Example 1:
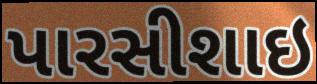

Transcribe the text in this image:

પારસીશાઇ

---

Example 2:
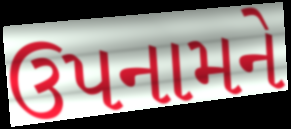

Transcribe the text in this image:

ઉપનામને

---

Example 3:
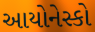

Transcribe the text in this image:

આયોનેસ્કો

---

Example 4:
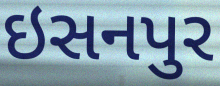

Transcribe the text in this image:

ઇસનપુર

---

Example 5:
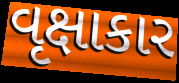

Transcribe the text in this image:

વૃક્ષાકાર